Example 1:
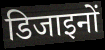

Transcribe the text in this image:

डिजाइनों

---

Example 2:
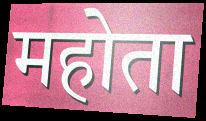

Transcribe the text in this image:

महोता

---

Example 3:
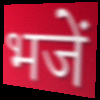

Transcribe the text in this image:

भजें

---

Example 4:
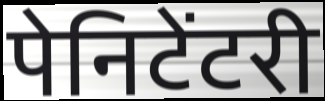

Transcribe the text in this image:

पेनिटेंटरी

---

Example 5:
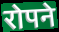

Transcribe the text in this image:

रोपने